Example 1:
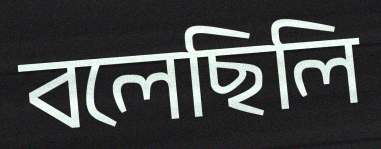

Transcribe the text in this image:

বলেছিলি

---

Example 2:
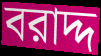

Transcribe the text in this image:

বরাদ্দ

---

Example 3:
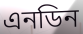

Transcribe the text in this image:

এনডিন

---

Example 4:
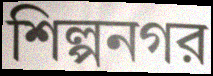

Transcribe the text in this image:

শিল্পনগর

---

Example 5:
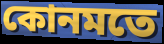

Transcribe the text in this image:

কোনমতে